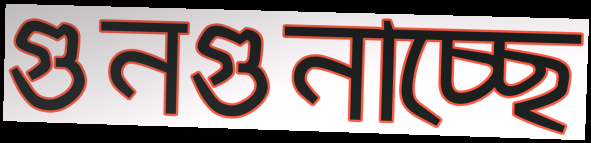
গুনগুনাচ্ছে